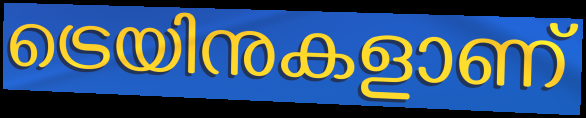
ട്രെയിനുകളാണ്